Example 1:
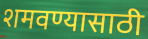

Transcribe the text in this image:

शमवण्यासाठी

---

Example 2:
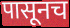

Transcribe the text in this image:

पासूनच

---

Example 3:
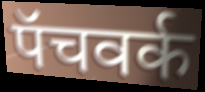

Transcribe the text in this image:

पॅचवर्क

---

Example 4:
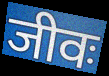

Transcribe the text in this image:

जीवः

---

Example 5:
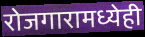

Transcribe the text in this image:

रोजगारामध्येही